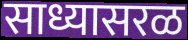
साध्यासरळ